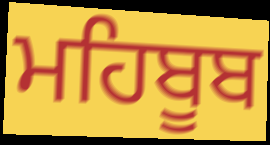
ਮਹਿਬੂਬ